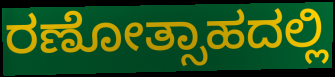
ರಣೋತ್ಸಾಹದಲ್ಲಿ